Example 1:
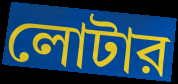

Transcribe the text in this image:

লোটার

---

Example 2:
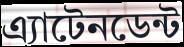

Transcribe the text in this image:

এ্যাটেনডেন্ট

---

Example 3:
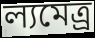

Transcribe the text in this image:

ল্যমেত্র্র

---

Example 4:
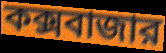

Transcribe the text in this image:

কক্সবাজার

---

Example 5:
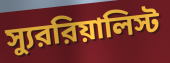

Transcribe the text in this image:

স্যুররিয়ালিস্ট